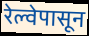
रेल्वेपासून